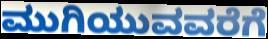
ಮುಗಿಯುವವರೆಗೆ